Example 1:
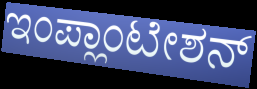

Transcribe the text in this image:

ಇಂಪ್ಲಾಂಟೇಶನ್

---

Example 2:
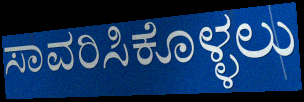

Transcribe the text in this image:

ಸಾವರಿಸಿಕೊಳ್ಳಲು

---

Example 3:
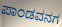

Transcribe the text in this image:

ಪಾಂಡವನಗ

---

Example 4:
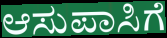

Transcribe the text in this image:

ಆಸುಪಾಸಿಗೆ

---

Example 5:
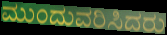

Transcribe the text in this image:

ಮುಂದುವರಿಸಿದರು